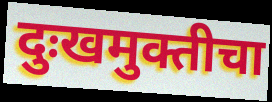
दुःखमुक्तीचा